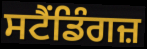
ਸਟੈਂਡਿੰਗਜ਼